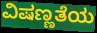
ವಿಷಣ್ಣತೆಯ